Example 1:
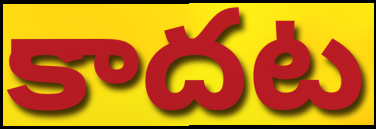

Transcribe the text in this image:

కాదట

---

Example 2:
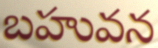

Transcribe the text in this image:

బహువన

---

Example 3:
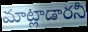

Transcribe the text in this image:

మాట్లాడారనీ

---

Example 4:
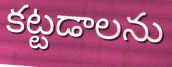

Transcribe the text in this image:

కట్టడాలను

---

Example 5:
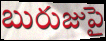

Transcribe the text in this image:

బురుజుపై